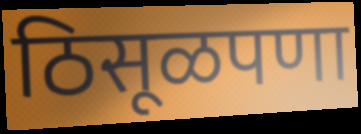
ठिसूळपणा